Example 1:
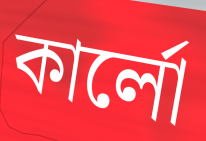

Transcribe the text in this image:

কার্লো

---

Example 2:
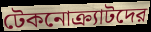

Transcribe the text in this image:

টেকনোক্র্যাটদের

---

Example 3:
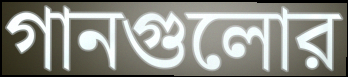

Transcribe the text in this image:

গানগুলোর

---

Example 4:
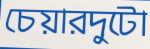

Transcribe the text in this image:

চেয়ারদুটো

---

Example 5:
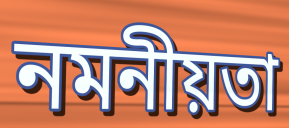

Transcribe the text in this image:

নমনীয়তা